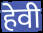
हेवी